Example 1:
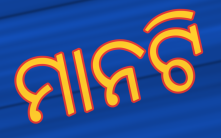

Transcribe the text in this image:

ମାନଟି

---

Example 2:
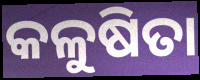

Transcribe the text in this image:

କଳୁଷିତା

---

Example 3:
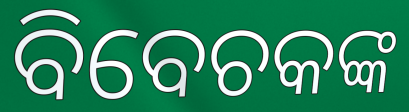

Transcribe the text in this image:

ବିବେଚକଙ୍କ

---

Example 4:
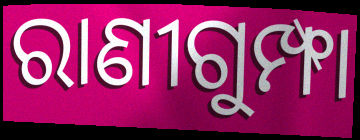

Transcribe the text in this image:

ରାଣୀଗୁମ୍ଫା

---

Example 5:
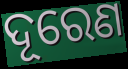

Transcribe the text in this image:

ଦୂରେଣ